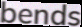
bends